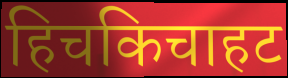
हिचकिचाहट